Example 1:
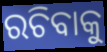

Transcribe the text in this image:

ରଚିବାକୁ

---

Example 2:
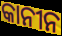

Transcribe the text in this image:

କାନୀନ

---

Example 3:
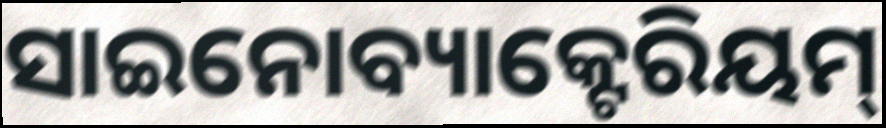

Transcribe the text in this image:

ସାଇନୋବ୍ୟାକ୍ଟେରିୟମ୍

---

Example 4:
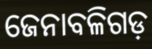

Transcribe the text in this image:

ଜେନାବଳିଗଡ଼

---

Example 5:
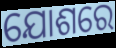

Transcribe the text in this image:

ଯୋଶରେ